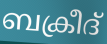
ബക്രീദ്